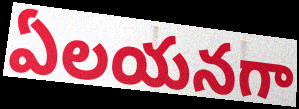
ఏలయనగా